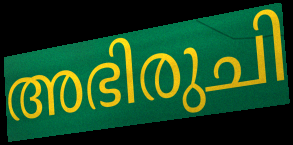
അഭിരുചി